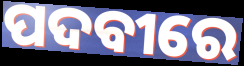
ପଦବୀରେ